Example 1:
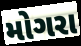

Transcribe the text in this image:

મોગરા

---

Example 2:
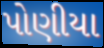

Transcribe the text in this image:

પોણીયા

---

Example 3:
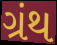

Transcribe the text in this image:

ગ્રંથ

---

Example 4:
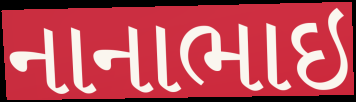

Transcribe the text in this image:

નાનાભાઇ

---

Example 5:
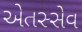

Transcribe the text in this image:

એતસ્સેવ